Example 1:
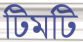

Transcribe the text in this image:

টিমটি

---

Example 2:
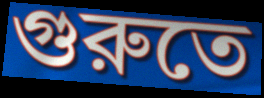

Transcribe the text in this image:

গুরুতে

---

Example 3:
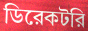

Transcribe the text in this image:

ডিরেকটরি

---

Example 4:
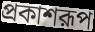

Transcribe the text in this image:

প্রকাশরূপ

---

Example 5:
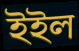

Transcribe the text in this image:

ইইল